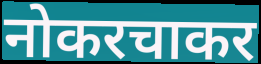
नोकरचाकर